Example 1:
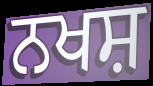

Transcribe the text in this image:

ਨਖਸ਼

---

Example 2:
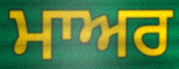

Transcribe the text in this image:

ਮਾਅਰ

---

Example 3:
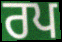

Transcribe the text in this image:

ਰਪ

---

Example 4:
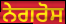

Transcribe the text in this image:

ਨੇਗਰੋਸ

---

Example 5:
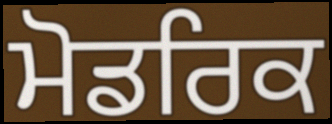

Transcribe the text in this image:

ਮੋਡਰਿਕ